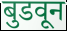
बुडवून